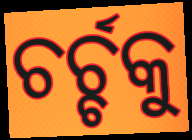
ଚର୍ଚ୍ଚକୁ